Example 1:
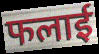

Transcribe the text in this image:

फलाई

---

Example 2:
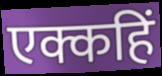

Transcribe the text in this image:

एक्कहिं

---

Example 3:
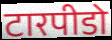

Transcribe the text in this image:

टारपीडो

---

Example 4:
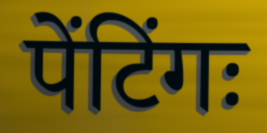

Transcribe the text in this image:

पेंटिंगः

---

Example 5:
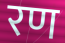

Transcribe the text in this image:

रण